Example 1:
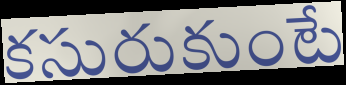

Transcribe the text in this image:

కసురుకుంటే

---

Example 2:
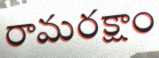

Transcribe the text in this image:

రామరక్షాం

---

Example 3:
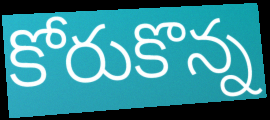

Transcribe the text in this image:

కోరుకొన్న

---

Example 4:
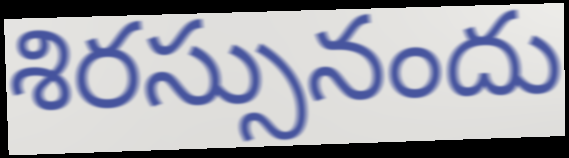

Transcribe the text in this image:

శిరస్సునందు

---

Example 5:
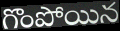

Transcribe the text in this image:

గొంపోయిన